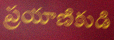
ప్రయాణికుడి